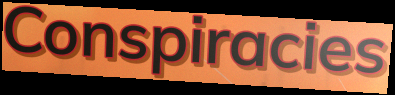
Conspiracies